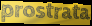
prostrata